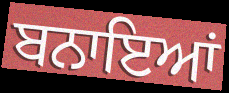
ਬਨਾਇਆਂ